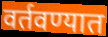
वर्तवण्यात